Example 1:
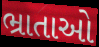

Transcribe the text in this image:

ભ્રાતાઓ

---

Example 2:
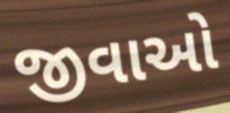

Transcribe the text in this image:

જીવાઓ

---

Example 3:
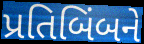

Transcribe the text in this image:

પ્રતિબિંબને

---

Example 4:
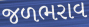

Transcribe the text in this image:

જળભરાવ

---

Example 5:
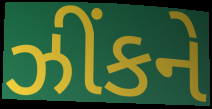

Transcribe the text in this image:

ઝીંકને